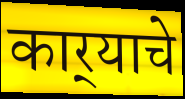
कार्याचे